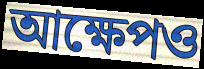
আক্ষেপও